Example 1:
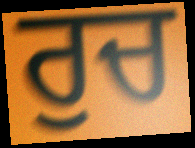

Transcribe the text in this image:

ਰੁਚ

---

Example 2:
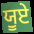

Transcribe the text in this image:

ਯੂਏ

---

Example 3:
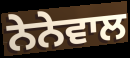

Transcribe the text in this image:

ਨੇਨੇਵਾਲ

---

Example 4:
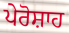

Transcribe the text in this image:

ਪੇਰੋਸ਼ਾਹ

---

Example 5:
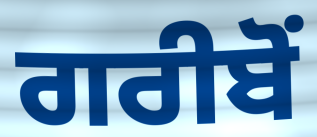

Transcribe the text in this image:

ਗਰੀਬੋਂ